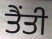
ਤੈਂਤੀ